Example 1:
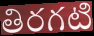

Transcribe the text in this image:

తిరగటి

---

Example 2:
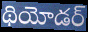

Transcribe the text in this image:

థియోడర్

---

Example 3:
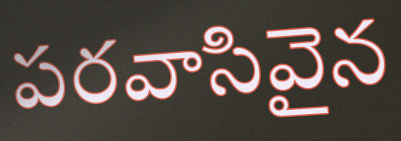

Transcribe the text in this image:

పరవాసివైన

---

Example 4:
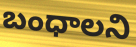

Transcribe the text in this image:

బంధాలని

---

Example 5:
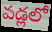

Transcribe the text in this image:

వడ్లలో